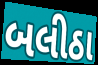
બલીઠા